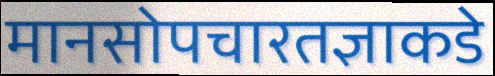
मानसोपचारतज्ञाकडे